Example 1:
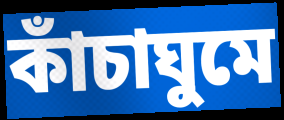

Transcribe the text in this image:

কাঁচাঘুমে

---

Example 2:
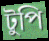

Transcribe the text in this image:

টুপি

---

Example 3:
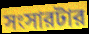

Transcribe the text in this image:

সংসারটার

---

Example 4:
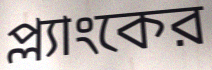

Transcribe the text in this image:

প্ল্যাংকের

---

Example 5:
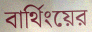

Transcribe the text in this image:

বার্থিংয়ের